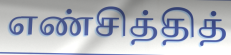
எண்சித்தித்